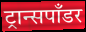
ट्रान्सपाँडर